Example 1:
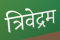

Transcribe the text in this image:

त्रिवेद्रम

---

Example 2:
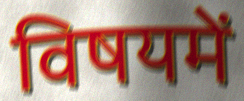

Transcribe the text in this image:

विषयमें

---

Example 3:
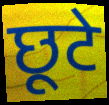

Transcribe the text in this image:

छूटे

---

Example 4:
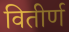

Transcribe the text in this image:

वितीर्ण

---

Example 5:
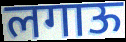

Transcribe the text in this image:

लगाऊ